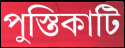
পুস্তিকাটি